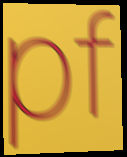
pf